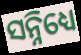
ସନ୍ନିଧ୍ୟେ